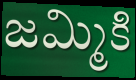
జమ్మికి